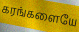
கரங்களையே